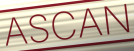
ASCAN